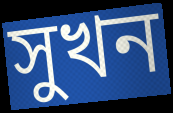
সুখন